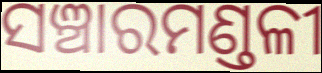
ସଞ୍ଚାରମଣ୍ଡଳୀ